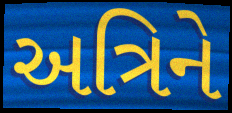
અત્રિને